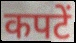
कपटें